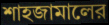
শাহজামালের